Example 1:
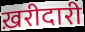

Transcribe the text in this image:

ख़रीदारी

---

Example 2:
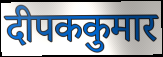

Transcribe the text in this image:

दीपककुमार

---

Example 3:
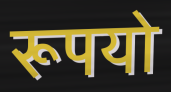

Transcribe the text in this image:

रूपयो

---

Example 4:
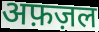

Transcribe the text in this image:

अफ़ज़ल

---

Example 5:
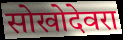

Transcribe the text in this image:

सोखोदेवरा